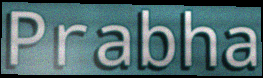
Prabha